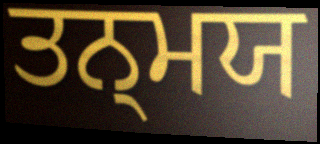
ਤਨ੍ਮਯ